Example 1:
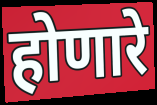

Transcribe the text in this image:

होणारे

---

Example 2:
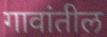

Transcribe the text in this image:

गावांतील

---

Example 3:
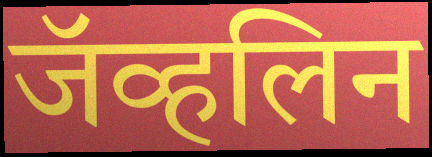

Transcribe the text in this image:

जॅव्हलिन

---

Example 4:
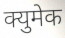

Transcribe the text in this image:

क्युमेक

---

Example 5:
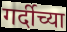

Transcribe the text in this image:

गर्दीच्या